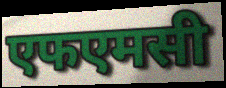
एफएमसी